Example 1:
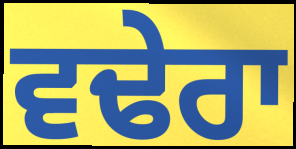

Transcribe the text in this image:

ਵਢੇਰਾ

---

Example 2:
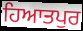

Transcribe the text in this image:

ਹਿਆਤਪੁਰ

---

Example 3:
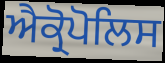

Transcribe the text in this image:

ਐਕ੍ਰੋਪੋਲਿਸ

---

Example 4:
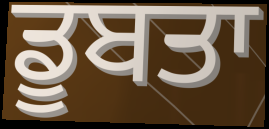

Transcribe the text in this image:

ਡੂਬਤਾ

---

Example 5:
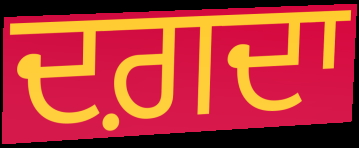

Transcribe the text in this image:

ਦਗ਼ਦਾ